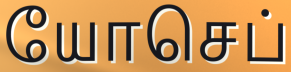
யோசெப்